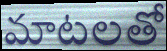
మాటలతో